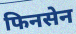
फिनसेन